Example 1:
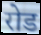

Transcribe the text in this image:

रोड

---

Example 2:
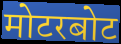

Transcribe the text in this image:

मोटरबोट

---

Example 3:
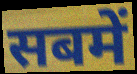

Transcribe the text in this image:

सबमें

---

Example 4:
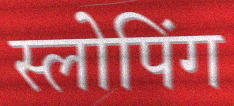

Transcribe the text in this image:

स्लोपिंग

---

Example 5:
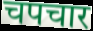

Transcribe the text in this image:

चपचार